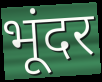
भूंदर